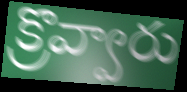
క్రొవ్వారు